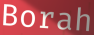
Borah